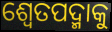
ଶ୍ୱେତପଦ୍ମାକୁ